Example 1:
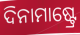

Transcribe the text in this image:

ଦିନାମାଷ୍ଟ୍ରେ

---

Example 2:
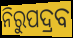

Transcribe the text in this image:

ନିରୁପଦ୍ରବ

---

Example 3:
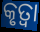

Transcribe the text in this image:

କୃତ୍ଵା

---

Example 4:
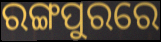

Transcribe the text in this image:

ରଙ୍ଗପୁରରେ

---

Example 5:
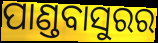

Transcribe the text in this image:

ପାଣ୍ଡବାସୁରର